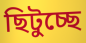
ছিটুচ্ছে